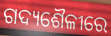
ଗଦ୍ୟଶୈଳୀରେ